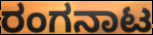
ರಂಗನಾಟ